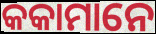
କକାମାନେ